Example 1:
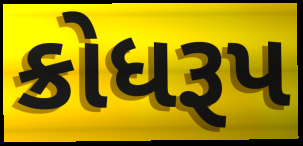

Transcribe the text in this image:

ક્રોધરૂપ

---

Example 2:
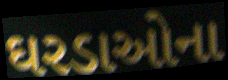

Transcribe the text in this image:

ઘરડાઓના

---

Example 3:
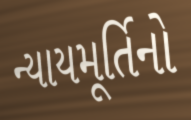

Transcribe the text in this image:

ન્યાયમૂર્તિનો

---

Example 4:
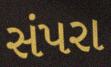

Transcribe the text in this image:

સંપરા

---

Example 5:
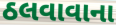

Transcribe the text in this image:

ઠલવાવાના